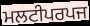
ਮਲਟੀਪਰਪਜ